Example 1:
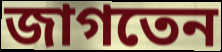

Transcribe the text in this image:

জাগতেন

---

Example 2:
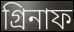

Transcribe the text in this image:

গ্রিনাফ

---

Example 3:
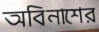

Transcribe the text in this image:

অবিনাশের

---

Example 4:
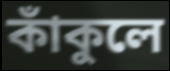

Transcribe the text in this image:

কাঁকুলে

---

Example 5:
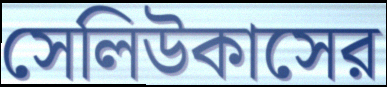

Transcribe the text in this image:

সেলিউকাসের